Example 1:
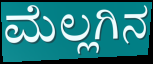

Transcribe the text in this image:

ಮೆಲ್ಲಗಿನ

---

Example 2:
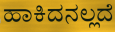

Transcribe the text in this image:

ಹಾಕಿದನಲ್ಲದೆ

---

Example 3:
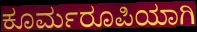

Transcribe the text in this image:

ಕೂರ್ಮರೂಪಿಯಾಗಿ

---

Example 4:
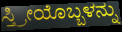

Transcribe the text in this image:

ಸ್ತ್ರೀಯೊಬ್ಬಳನ್ನು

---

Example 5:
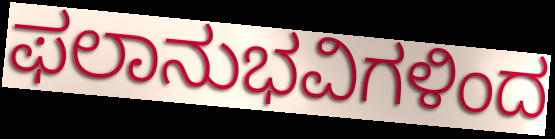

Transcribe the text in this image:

ಫಲಾನುಭವಿಗಳಿಂದ